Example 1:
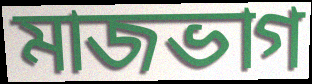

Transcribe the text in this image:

মাজভাগ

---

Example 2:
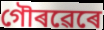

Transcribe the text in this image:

গৌৰৱেৰে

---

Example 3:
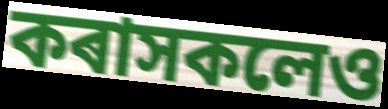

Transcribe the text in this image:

কৰাসকলেও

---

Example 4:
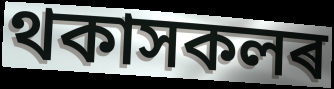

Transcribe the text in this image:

থকাসকলৰ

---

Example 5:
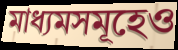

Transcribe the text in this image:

মাধ্য়মসমূহেও